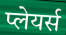
प्लेयर्स